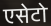
एसेटो